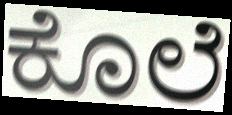
ಕೊಲೆ